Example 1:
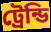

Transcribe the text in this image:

ট্রেন্ডি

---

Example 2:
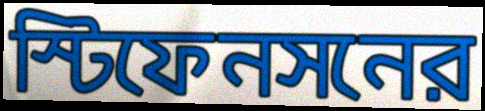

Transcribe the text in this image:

স্টিফেনসনের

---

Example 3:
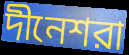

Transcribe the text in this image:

দীনেশরা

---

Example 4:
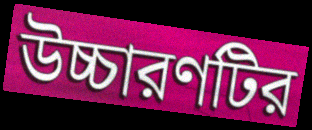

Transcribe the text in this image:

উচ্চারণটির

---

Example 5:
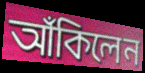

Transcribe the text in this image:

আঁকিলেন